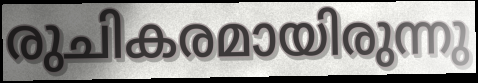
രുചികരമായിരുന്നു